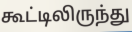
கூட்டிலிருந்து